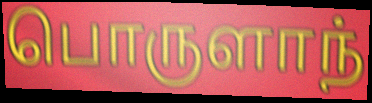
பொருளாந்